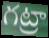
గట్రా